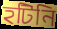
হটিনি